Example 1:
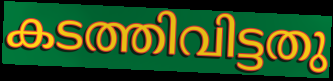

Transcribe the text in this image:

കടത്തിവിട്ടതു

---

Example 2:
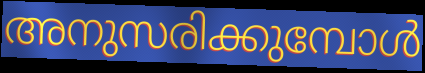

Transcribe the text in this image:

അനുസരിക്കുമ്പോൾ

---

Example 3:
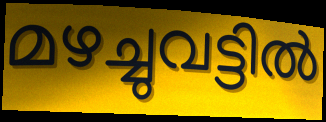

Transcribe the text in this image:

മഴച്ചുവട്ടിൽ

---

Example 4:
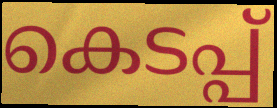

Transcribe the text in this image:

കെടപ്പ്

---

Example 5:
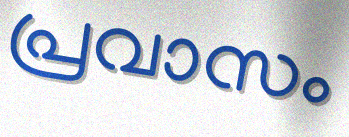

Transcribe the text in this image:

പ്രവാസം